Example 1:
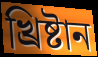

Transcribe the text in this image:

খ্ৰিষ্টান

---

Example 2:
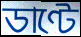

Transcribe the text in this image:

ডাণ্টে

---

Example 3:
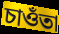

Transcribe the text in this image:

চাওঁতা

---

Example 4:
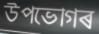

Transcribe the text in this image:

উপভোগৰ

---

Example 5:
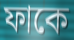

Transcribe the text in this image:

ফাকে